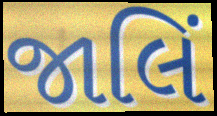
જાલિં